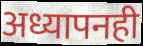
अध्यापनही